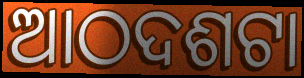
ଆଠଦଶଟା